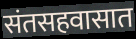
संतसहवासात